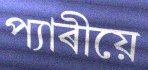
প্যাৰীয়ে